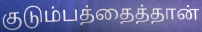
குடும்பத்தைத்தான்